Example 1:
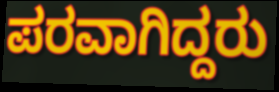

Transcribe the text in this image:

ಪರವಾಗಿದ್ದರು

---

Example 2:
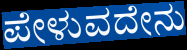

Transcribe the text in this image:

ಪೇಳುವದೇನು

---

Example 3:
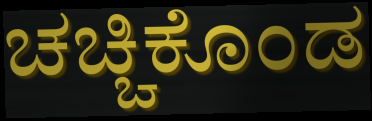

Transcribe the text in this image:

ಚಚ್ಚಿಕೊಂಡ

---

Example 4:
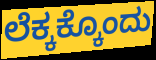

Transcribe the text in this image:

ಲೆಕ್ಕಕ್ಕೊಂದು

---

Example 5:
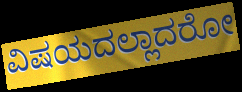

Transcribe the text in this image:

ವಿಷಯದಲ್ಲಾದರೋ